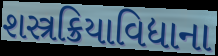
શસ્ત્રક્રિયાવિદ્યાના